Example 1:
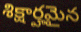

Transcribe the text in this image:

శిక్షార్హమైన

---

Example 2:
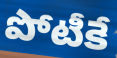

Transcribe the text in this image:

పోటీకే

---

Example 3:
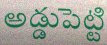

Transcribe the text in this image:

అడ్డుపెట్టి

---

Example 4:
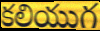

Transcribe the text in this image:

కలియుగ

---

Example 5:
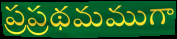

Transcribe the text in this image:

ప్రప్రథమముగా